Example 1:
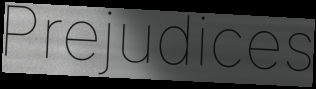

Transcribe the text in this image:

Prejudices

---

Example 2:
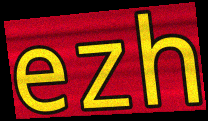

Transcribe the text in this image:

ezh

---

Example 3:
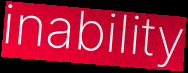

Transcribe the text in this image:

inability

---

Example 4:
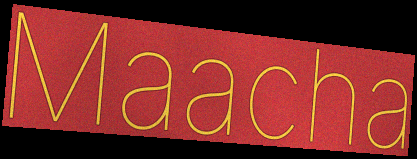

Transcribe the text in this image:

Maacha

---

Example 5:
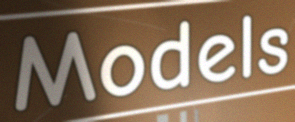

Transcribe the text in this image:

Models